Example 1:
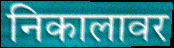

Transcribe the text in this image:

निकालावर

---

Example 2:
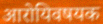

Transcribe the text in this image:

आरोयिवषयक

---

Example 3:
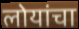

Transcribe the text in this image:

लोयांचा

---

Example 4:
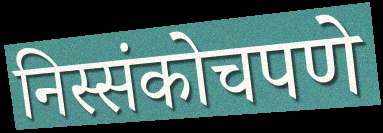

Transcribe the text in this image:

निस्संकोचपणे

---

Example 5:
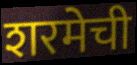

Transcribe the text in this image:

शरमेची